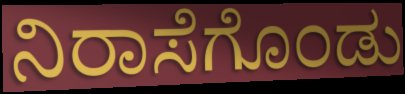
ನಿರಾಸೆಗೊಂಡು